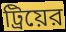
ট্রিয়ের